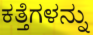
ಕತ್ತೆಗಳನ್ನು